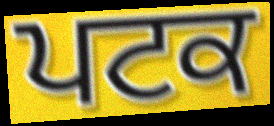
ਪਟਕ